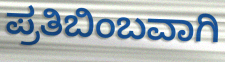
ಪ್ರತಿಬಿಂಬವಾಗಿ